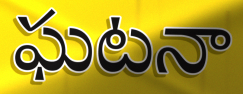
ఘటనా